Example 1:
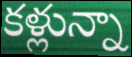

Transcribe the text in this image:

కళ్లున్నా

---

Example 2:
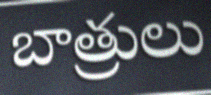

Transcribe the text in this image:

బాత్రులు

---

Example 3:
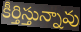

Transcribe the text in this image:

కీర్తిస్తున్నావు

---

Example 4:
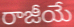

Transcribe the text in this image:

రాజీయే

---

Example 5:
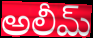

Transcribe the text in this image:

అలీమ్